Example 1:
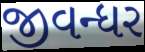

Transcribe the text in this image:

જીવન્ધર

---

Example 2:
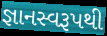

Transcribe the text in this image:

જ્ઞાનસ્વરૂપથી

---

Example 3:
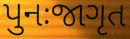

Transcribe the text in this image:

પુનઃજાગૃત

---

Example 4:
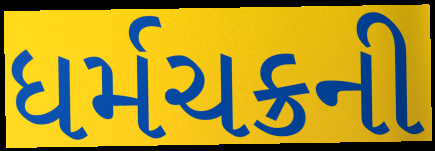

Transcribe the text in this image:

ધર્મચક્રની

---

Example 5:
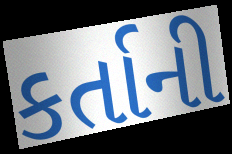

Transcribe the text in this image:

કર્તાની